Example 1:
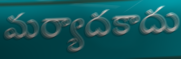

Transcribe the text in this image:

మర్యాదకాదు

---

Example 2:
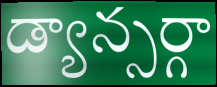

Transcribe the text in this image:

డ్యాన్సర్గా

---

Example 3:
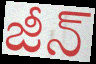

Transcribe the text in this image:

జీన్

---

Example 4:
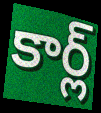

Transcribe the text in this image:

కార్ల్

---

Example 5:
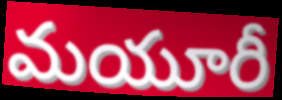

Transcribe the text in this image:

మయూరీ